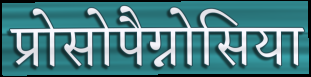
प्रोसोपैग्नोसिया